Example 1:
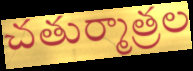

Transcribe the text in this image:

చతుర్మాత్రల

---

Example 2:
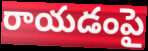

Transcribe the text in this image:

రాయడంపై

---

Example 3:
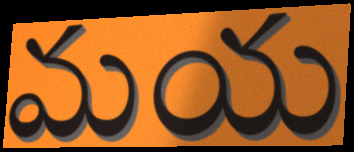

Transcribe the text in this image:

మయ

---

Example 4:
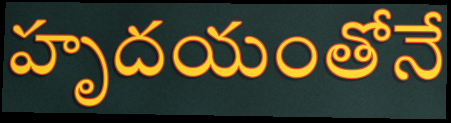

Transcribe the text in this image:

హృదయంతోనే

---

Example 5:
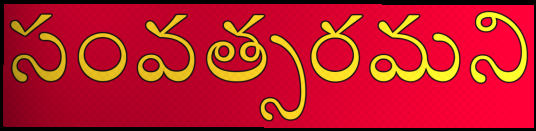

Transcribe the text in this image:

సంవత్సరమని